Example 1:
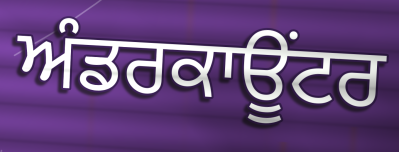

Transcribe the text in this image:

ਅੰਡਰਕਾਊਂਟਰ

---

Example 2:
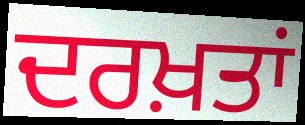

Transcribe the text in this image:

ਦਰਖ਼ਤਾਂ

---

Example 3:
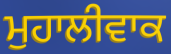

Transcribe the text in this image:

ਮੁਹਾਲੀਵਾਕ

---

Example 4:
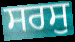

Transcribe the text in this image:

ਸਰਸੁ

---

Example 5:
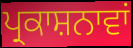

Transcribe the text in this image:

ਪ੍ਰਕਾਸ਼ਨਾਵਾਂ